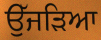
ਉੱਜੜਿਆ